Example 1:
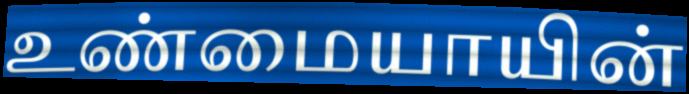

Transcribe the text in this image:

உண்மையாயின்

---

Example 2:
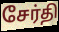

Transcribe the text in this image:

சேர்தி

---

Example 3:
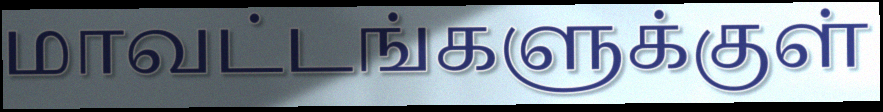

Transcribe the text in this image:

மாவட்டங்களுக்குள்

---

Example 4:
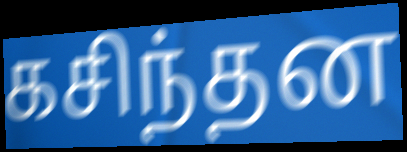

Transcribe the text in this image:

கசிந்தன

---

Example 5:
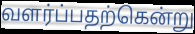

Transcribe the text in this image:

வளர்ப்பதற்கென்று